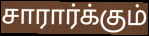
சாரார்க்கும்